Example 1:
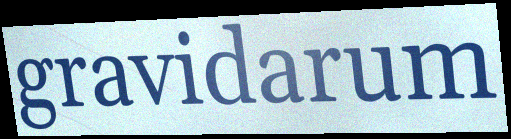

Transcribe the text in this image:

gravidarum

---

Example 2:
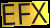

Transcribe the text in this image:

EFX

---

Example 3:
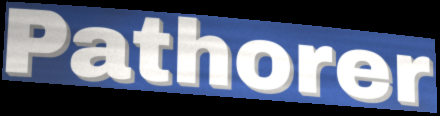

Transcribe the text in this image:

Pathorer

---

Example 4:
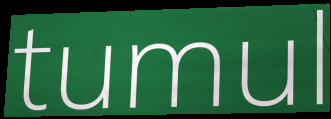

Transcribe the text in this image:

tumul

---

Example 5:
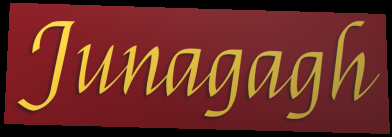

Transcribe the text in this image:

Junagagh